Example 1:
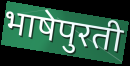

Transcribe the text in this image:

भाषेपुरती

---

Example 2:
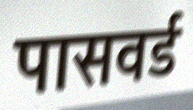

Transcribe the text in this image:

पासवर्ड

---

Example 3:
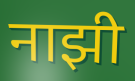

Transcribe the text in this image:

नाझी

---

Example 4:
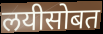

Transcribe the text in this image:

लयीसोबत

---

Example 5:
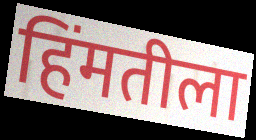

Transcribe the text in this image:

हिंमतीला